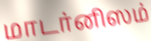
மாடர்னிஸம்